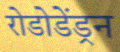
रोडोडेंड्रन